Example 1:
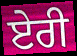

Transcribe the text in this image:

ਏਰੀ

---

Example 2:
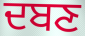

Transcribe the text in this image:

ਦਬਣ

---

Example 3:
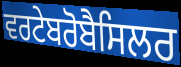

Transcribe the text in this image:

ਵਰਟੇਬਰੋਬੈਸਿਲਰ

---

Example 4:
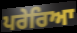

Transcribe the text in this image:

ਪਰੇਰਿਆ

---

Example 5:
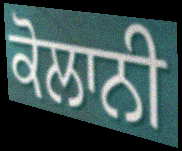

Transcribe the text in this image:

ਕੋਲਾਨੀ